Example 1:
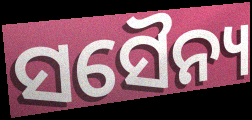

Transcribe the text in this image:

ସସୈନ୍ୟ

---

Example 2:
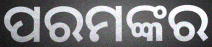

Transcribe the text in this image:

ପରମଙ୍କର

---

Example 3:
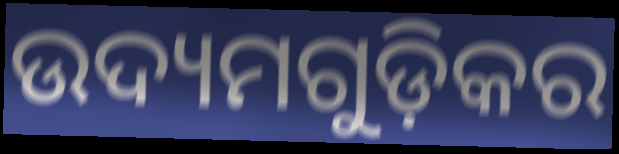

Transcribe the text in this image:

ଉଦ୍ୟମଗୁଡ଼ିକର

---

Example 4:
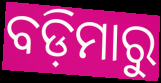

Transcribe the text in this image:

ବଡ଼ିମାରୁ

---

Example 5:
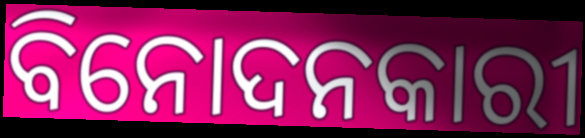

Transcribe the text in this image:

ବିନୋଦନକାରୀ